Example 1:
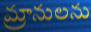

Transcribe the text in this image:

మ్రానులను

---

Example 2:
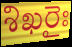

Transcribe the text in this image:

శిఖరైః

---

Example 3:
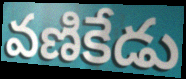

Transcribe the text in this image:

వణికేడు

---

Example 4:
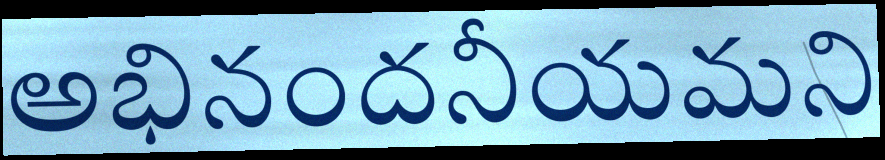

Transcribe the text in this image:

అభినందనీయమని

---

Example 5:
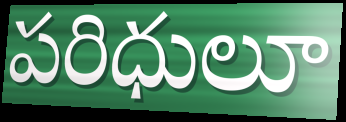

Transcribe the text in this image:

పరిధులూ